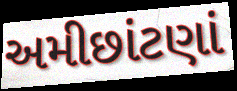
અમીછાંટણાં